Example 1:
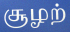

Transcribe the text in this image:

சூழற்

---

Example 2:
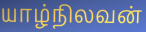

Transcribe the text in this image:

யாழ்நிலவன்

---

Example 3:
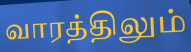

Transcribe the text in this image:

வாரத்திலும்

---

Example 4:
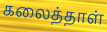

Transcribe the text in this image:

கலைத்தாள்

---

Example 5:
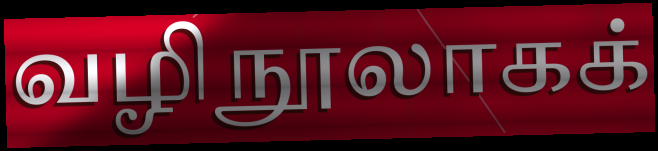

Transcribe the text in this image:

வழிநூலாகக்